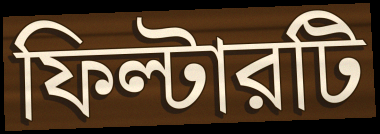
ফিল্টারটি